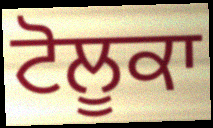
ਟੋਲੂਕਾ